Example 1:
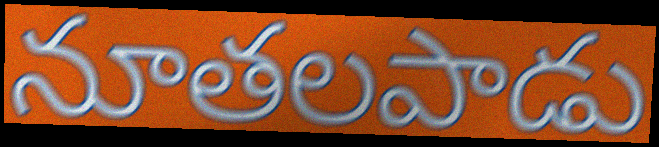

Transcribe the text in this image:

నూతలపాడు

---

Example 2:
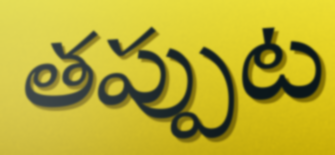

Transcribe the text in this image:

తప్పుట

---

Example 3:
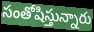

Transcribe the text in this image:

సంతోషిస్తున్నారు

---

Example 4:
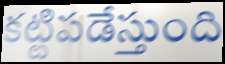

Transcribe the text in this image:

కట్టిపడేస్తుంది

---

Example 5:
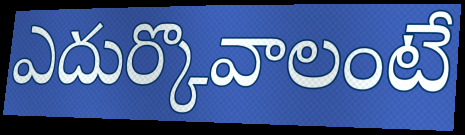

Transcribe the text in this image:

ఎదుర్కొవాలంటే